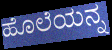
ಹೊಲೆಯನ್ನ